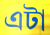
এটা